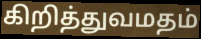
கிறித்துவமதம்